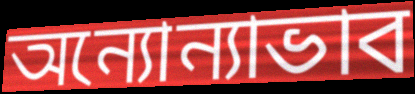
অন্যোন্যাভাব